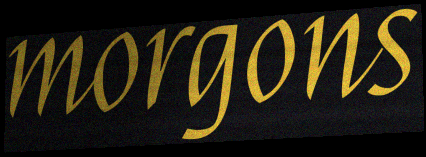
morgons